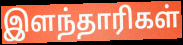
இளந்தாரிகள்